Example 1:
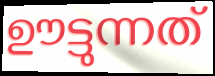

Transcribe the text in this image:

ഊട്ടുന്നത്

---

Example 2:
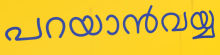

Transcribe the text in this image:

പറയാൻവയ്യ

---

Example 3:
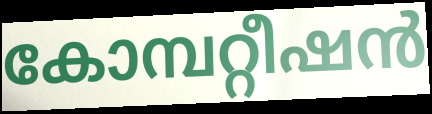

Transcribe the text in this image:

കോമ്പറ്റീഷൻ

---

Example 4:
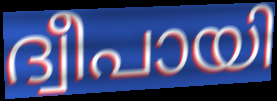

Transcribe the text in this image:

ദ്വീപായി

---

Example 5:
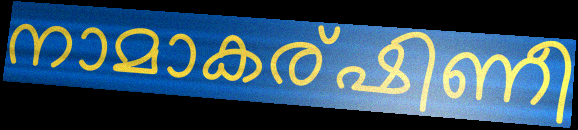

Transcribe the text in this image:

നാമാകര്ഷിണീ